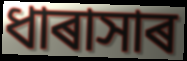
ধাৰাসাৰ